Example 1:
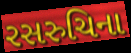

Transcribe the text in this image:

રસરુચિના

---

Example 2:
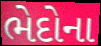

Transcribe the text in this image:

ભેદોના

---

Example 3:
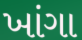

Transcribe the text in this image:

ખાંગા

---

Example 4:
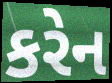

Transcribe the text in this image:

કરેન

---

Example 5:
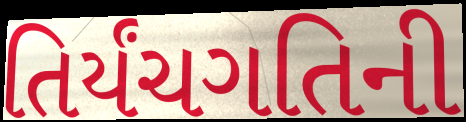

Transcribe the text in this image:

તિર્યંચગતિની